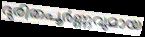
ദുരിതപൂർണ്ണവുമായ